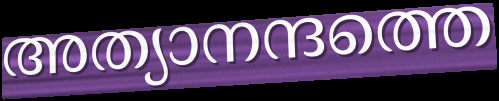
അത്യാനന്ദത്തെ